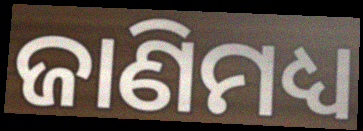
ଜାଣିମଧ୍ୟ